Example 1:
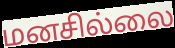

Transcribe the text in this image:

மனசில்லை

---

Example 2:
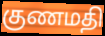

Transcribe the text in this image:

குணமதி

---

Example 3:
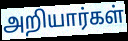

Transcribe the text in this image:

அறியார்கள்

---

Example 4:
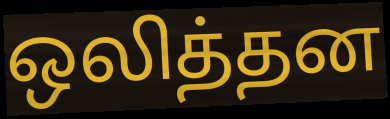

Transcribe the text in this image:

ஒலித்தன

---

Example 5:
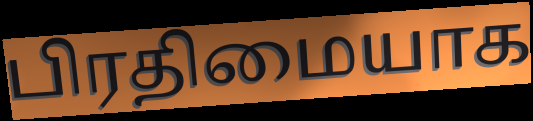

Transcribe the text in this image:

பிரதிமையாக